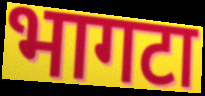
भागटा